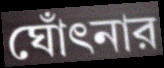
ঘোঁৎনার